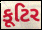
કૂટિર